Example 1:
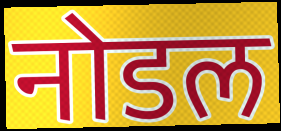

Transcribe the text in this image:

नोडल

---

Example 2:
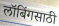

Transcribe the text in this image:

लॉबिंगसाठी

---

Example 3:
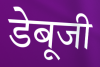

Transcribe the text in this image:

डेबूजी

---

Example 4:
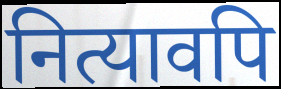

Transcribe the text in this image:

नित्यावपि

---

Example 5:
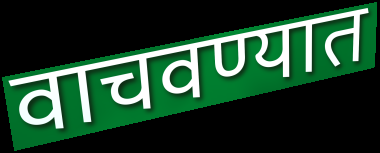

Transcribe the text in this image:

वाचवण्यात